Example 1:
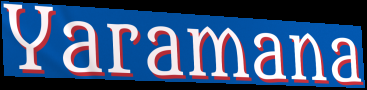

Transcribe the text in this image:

Yaramana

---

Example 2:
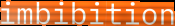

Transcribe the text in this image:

imbibition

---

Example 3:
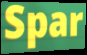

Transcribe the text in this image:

Spar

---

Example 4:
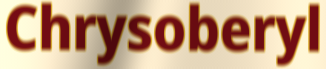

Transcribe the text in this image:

Chrysoberyl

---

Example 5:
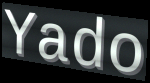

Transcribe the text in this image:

Yado